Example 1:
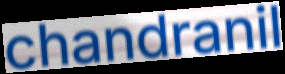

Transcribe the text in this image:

chandranil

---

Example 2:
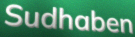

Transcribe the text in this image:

Sudhaben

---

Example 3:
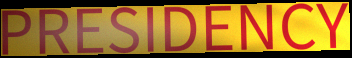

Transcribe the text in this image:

PRESIDENCY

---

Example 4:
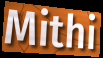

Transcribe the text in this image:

Mithi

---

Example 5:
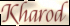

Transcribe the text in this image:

Kharod